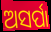
ଅସର୍ପା